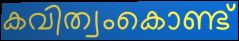
കവിത്വംകൊണ്ട്